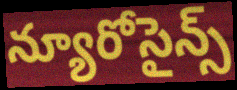
న్యూరోసైన్స్